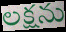
లక్షను